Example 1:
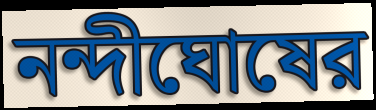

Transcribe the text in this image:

নন্দীঘোষের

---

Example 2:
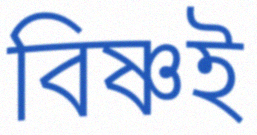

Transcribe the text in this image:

বিষ্ণই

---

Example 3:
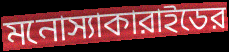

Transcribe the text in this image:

মনোস্যাকারাইডের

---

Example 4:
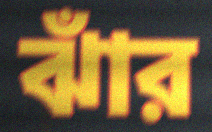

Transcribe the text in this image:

ঝাঁর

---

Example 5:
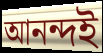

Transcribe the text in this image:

আনন্দই